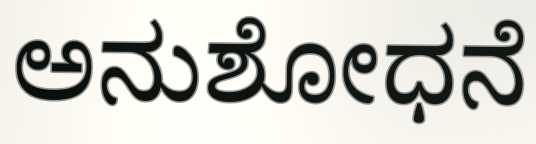
ಅನುಶೋಧನೆ